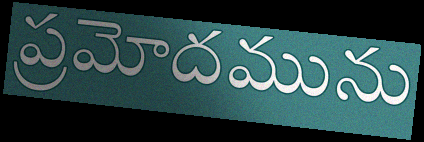
ప్రమోదమును